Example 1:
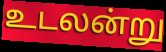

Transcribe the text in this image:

உடலன்று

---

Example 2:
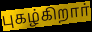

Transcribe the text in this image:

புகழ்கிறார்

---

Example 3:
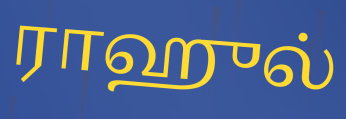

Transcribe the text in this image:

ராஹுல்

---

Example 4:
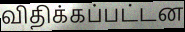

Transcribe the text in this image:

விதிக்கப்பட்டன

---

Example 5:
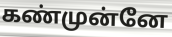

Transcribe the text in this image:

கண்முன்னே